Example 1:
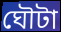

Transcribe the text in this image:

ঘৌটা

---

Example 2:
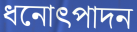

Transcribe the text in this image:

ধনোৎপাদন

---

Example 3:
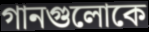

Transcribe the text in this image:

গানগুলোকে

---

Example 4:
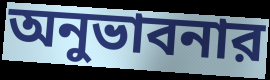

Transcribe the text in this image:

অনুভাবনার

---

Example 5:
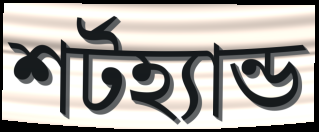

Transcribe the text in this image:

শর্টহ্যান্ড